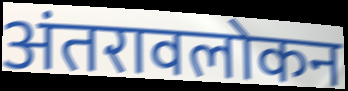
अंतरावलोकन